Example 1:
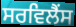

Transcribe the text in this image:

ਸਰਵਿਲੈਂਸ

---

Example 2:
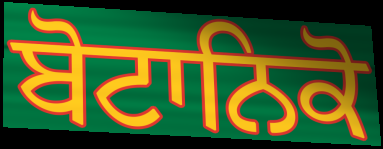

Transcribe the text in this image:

ਬੋਟਾਨਿਕੋ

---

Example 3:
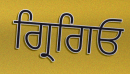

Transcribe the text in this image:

ਗ੍ਰਿਗਿਓ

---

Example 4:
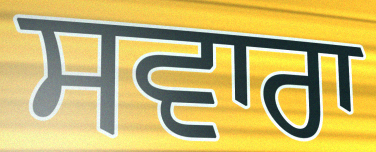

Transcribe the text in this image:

ਸਵਾਰਾ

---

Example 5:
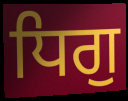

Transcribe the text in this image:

ਧਿਗੁ